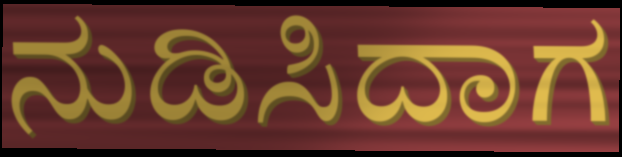
ನುಡಿಸಿದಾಗ